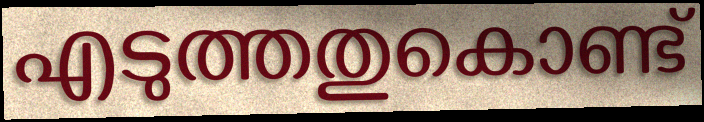
എടുത്തതുകൊണ്ട്